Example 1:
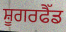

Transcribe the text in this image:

ਸ਼ੂਗਰਫੈੱਡ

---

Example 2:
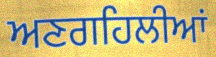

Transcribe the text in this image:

ਅਣਗਹਿਲੀਆਂ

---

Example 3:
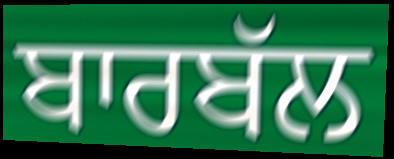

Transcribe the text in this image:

ਬਾਰਬੱਲ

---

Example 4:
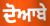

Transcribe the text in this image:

ਦੋਆਬੇ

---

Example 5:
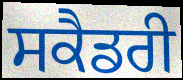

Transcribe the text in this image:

ਸਕੈਡਰੀ